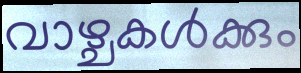
വാഴ്ചകൾക്കും